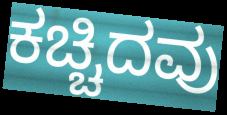
ಕಚ್ಚಿದವು